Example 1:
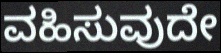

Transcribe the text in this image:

ವಹಿಸುವುದೇ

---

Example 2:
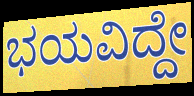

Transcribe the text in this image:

ಭಯವಿದ್ದೇ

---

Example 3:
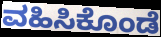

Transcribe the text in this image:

ವಹಿಸಿಕೊಂಡೆ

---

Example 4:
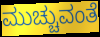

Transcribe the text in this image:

ಮುಚ್ಚುವಂತೆ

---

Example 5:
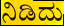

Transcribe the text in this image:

ನಿಡಿದು